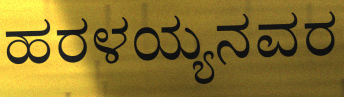
ಹರಳಯ್ಯನವರ